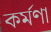
কর্মণা